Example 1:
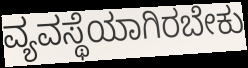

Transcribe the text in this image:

ವ್ಯವಸ್ಥೆಯಾಗಿರಬೇಕು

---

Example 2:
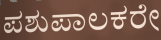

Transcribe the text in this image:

ಪಶುಪಾಲಕರೇ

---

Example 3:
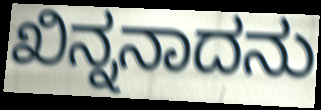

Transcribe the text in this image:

ಖಿನ್ನನಾದನು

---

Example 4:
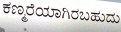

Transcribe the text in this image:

ಕಣ್ಮರೆಯಾಗಿರಬಹುದು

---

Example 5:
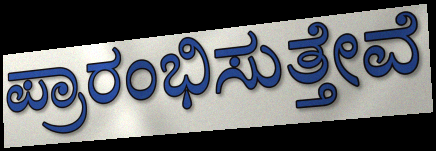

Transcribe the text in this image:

ಪ್ರಾರಂಭಿಸುತ್ತೇವೆ